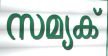
സമ്യക്